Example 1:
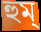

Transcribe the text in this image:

হুম্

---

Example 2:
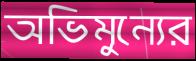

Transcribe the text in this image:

অভিমুন্যের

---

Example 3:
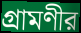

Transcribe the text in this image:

গ্রামণীর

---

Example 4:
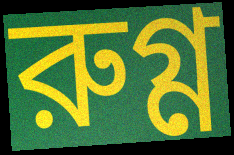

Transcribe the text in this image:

রুগ্ণ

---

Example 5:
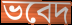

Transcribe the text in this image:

ভবেদ